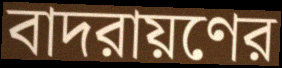
বাদরায়ণের